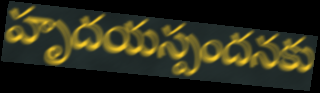
హృదయస్పందనకు